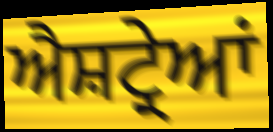
ਐਸ਼ਟ੍ਰੇਆਂ